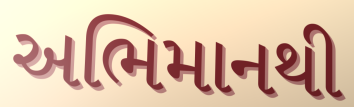
અભિમાનથી